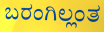
ಬರಂಗಿಲ್ಲಂತ